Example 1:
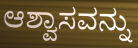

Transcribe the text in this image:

ಆಶ್ವಾಸವನ್ನು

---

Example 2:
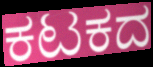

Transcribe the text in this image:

ಕಟಕದ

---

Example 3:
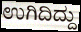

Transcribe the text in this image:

ಉಗಿದಿದ್ದು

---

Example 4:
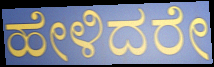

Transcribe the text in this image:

ಹೇಳಿದರೇ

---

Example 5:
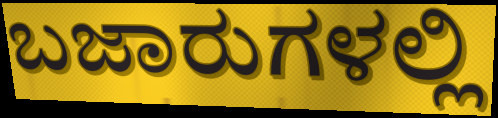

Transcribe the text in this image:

ಬಜಾರುಗಳಲ್ಲಿ